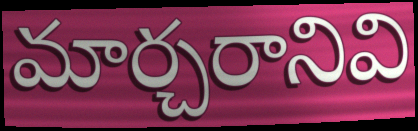
మార్చరానివి